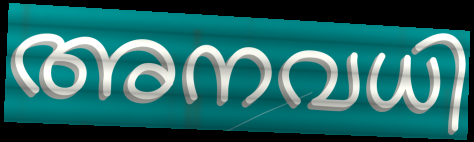
അനവധി